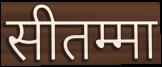
सीतम्मा